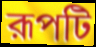
রূপটি